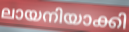
ലായനിയാക്കി